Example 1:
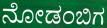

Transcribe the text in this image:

ನೋಡಂಬಿಗ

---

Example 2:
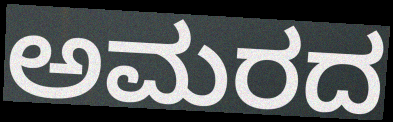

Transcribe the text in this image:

ಅಮರದ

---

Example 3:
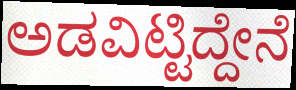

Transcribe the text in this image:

ಅಡವಿಟ್ಟಿದ್ದೇನೆ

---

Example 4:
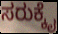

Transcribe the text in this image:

ಸರುಕ್ಕೈ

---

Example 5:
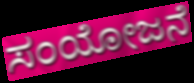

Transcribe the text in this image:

ಸಂಯೋಜನೆ